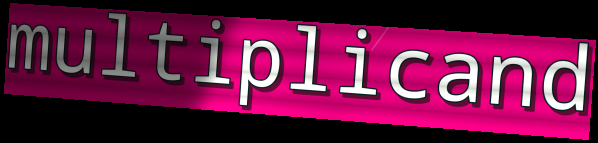
multiplicand